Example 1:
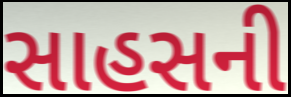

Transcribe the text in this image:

સાહસની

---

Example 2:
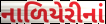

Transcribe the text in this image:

નાળિયેરીનાં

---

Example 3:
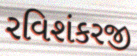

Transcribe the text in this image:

રવિશંકરજી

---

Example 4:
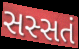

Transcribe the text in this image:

સસ્સતં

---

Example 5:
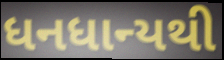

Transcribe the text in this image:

ધનધાન્યથી